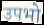
उपभो